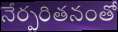
నేర్పరితనంతో